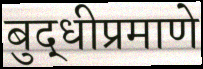
बुद्धीप्रमाणे